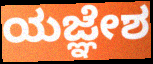
ಯಜ್ಞೇಶ